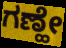
ಗಣ್ಹೇ